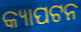
କ୍ୟାପଟନ